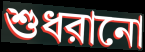
শুধরানো